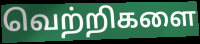
வெற்றிகளை